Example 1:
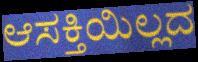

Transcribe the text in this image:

ಆಸಕ್ತಿಯಿಲ್ಲದ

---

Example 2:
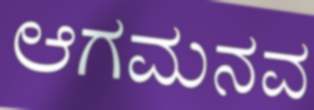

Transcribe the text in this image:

ಆಗಮನವ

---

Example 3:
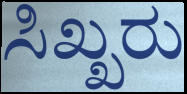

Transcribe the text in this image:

ಸಿಖ್ಖರು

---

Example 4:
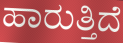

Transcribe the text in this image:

ಹಾರುತ್ತಿದೆ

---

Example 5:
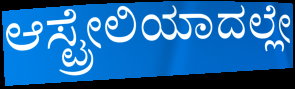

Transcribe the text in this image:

ಆಸ್ಟ್ರೇಲಿಯಾದಲ್ಲೇ